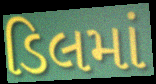
ડિલમાં